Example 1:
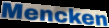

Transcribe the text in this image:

Mencken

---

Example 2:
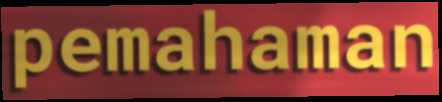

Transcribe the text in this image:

pemahaman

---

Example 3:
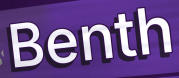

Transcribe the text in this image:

Benth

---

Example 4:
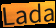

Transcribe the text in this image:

Lada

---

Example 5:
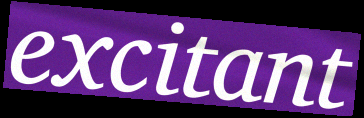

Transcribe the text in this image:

excitant